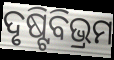
ଦୃଷ୍ଟିବିଭ୍ରମ